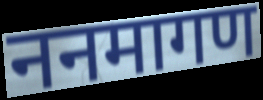
ननमागण